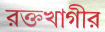
রক্তখাগীর